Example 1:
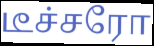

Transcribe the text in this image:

டீச்சரோ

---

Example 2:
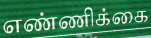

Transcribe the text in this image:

எண்ணிக்கை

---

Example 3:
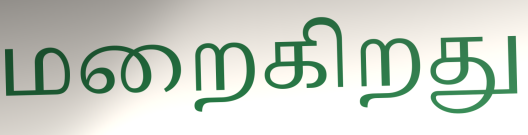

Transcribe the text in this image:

மறைகிறது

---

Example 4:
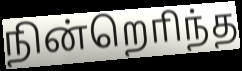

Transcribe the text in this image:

நின்றெரிந்த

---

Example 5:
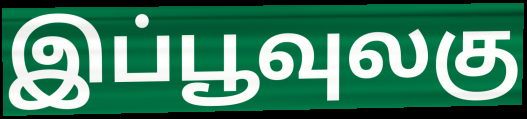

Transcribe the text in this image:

இப்பூவுலகு